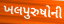
ખલપુરુષોની